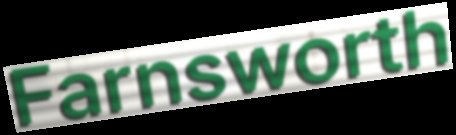
Farnsworth